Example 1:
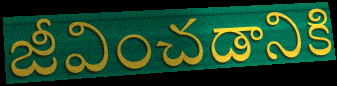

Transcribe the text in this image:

జీవించడానికి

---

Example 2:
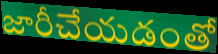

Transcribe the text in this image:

జారీచేయడంతో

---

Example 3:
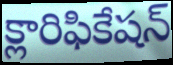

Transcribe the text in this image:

క్లారిఫికేషన్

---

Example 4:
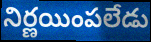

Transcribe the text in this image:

నిర్ణయింపలేడు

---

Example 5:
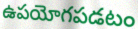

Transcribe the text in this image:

ఉపయోగపడటం